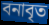
বনাবৃত